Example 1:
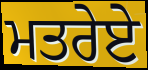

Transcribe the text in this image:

ਮਤਰੇਏ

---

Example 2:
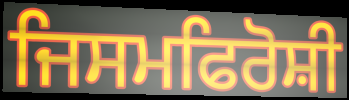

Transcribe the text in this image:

ਜਿਸਮਫਿਰੋਸ਼ੀ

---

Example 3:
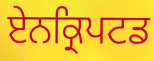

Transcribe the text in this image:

ਏਨਕ੍ਰਿਪਟਡ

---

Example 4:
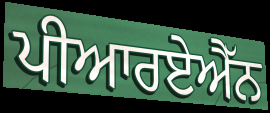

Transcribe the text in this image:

ਪੀਆਰਏਐੱਨ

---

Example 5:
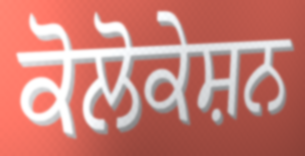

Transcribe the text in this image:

ਕੋਲੋਕੇਸ਼ਨ